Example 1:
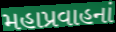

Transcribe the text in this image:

મહાપ્રવાહનાં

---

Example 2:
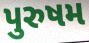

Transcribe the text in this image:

પુરુષમ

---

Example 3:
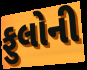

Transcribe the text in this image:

ફુલોની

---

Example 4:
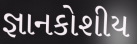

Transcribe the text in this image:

જ્ઞાનકોશીય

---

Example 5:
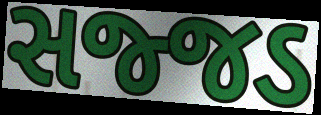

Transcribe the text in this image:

સજ્જડ